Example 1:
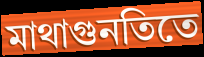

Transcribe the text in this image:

মাথাগুনতিতে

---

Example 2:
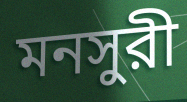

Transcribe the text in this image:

মনসুরী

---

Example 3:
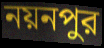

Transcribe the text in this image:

নয়নপুর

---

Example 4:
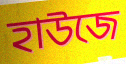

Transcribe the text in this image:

হাউজে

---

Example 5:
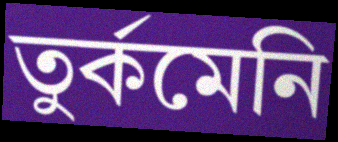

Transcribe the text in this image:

তুর্কমেনি